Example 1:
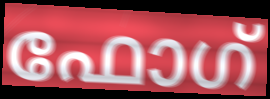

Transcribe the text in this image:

ഫോഗ്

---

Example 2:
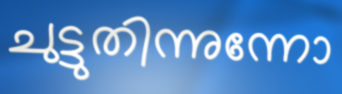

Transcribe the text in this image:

ചുട്ടുതിന്നുന്നോ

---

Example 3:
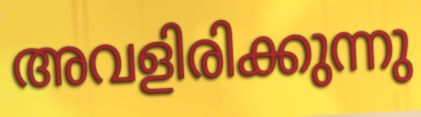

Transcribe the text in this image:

അവളിരിക്കുന്നു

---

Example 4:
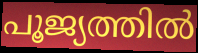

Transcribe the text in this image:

പൂജ്യത്തിൽ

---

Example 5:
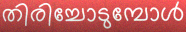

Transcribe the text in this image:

തിരിച്ചോടുമ്പോൾ